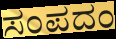
ಸಂಪದಂ